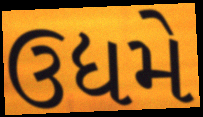
ઉદ્યમે